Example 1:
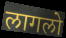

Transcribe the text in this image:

लागलो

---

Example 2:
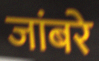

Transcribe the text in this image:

जांबरे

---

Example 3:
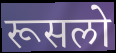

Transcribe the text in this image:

रूसलो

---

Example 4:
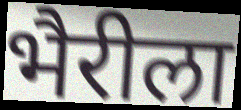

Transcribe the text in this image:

भैरीला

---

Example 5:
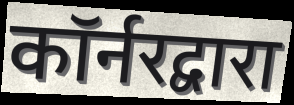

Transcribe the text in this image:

कॉर्नरद्वारा